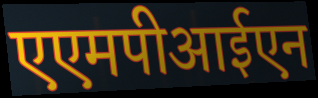
एएमपीआईएन